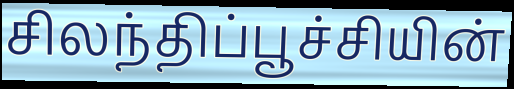
சிலந்திப்பூச்சியின்